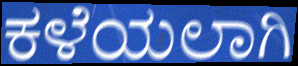
ಕಳೆಯಲಾಗಿ